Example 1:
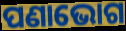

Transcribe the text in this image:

ପଣାଭୋଗ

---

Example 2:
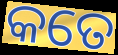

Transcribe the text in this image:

କତେ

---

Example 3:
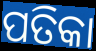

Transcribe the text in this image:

ପତିକା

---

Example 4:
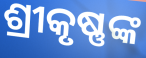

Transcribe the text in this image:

ଶ୍ରୀକୃଷ୍ଣଙ୍କ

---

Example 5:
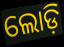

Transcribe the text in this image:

ଲୋଡ଼ି